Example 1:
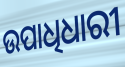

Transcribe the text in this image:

ଉପାଧିଧାରୀ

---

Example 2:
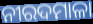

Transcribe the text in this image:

ନୀରଦମାଳା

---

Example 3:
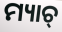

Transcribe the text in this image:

ମ୍ୟାଚ୍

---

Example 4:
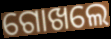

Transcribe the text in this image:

ଗୋଖଲେ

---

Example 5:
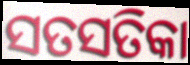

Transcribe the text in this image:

ସତସତିକା